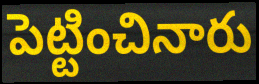
పెట్టించినారు